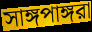
সাঙ্গপাঙ্গরা